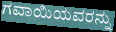
ಗವಾಯಿಯವರನ್ನು